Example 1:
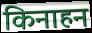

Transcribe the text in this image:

किनाहन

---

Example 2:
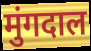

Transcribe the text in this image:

मुंगदाल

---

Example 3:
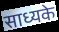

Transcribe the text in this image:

साध्यके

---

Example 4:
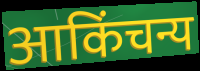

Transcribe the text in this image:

आकिंचन्य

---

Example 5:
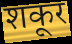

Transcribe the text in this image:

शकूर